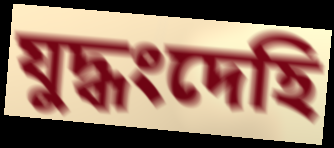
যুদ্ধংদেহি